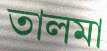
তালমা